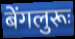
बेंगलुरूः